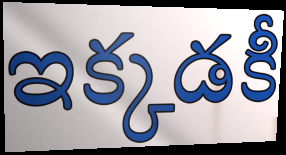
ఇక్కడకీ